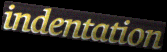
indentation